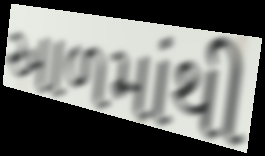
આળમાંથી